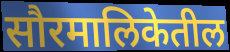
सौरमालिकेतील